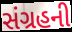
સંગ્રહની